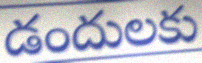
డందులకు